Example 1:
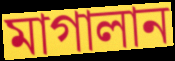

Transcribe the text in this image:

মাগালান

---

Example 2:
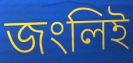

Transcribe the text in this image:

জংলিই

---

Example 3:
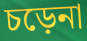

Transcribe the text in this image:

চড়েনা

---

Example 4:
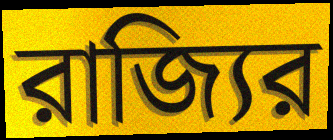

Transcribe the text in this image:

রাজ্যির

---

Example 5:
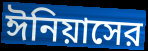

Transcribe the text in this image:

ঈনিয়াসের